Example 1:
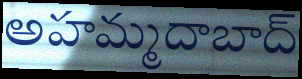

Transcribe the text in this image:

అహమ్మదాబాద్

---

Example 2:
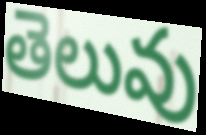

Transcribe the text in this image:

తెలువు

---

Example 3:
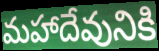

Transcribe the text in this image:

మహాదేవునికి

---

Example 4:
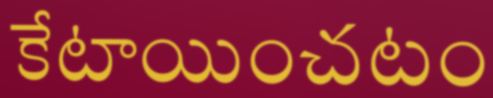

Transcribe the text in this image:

కేటాయించటం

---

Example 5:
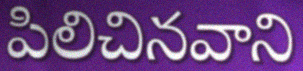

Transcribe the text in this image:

పిలిచినవాని